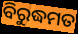
ବିରୁଦ୍ଧମତ